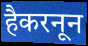
हैकरनून